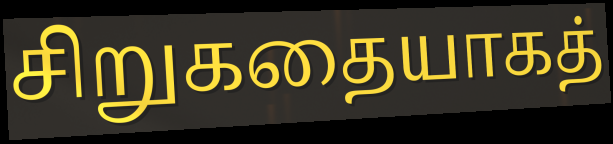
சிறுகதையாகத்